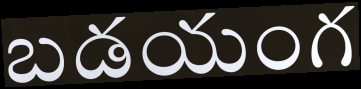
బడయంగ